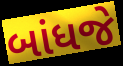
બાંધજે